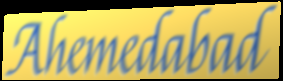
Ahemedabad